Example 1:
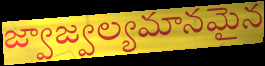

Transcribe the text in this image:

జ్వాజ్వల్యమానమైన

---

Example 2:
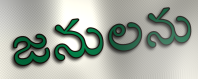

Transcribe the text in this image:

జనులను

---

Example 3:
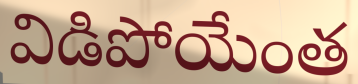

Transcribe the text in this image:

విడిపోయేంత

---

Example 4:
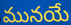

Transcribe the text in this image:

మునయే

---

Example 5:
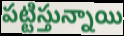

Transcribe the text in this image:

పట్టిస్తున్నాయి